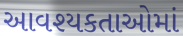
આવશ્યકતાઓમાં